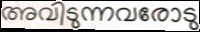
അവിടുന്നവരോടു